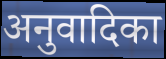
अनुवादिका